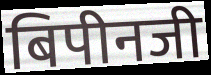
बिपीनजी